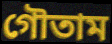
গৌতাম